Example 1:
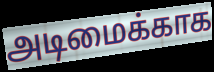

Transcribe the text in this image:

அடிமைக்காக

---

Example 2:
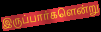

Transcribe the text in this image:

இருப்பார்களென்று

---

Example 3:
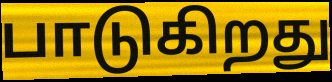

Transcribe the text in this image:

பாடுகிறது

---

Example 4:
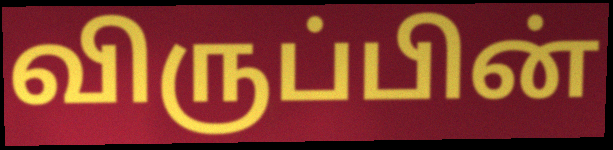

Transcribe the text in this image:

விருப்பின்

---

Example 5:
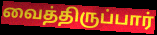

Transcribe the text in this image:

வைத்திருப்பார்